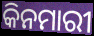
କିନମାରୀ